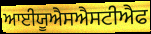
ਆਈਯੂਐਸਐਸਟੀਐਫ